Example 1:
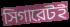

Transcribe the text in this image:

সিগারেটই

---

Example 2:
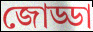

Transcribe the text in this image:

জোড্ডা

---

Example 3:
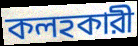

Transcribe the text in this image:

কলহকারী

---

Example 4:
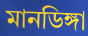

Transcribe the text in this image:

মানডিঙ্গা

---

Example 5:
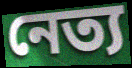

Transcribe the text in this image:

নেত্য